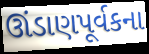
ઊંડાણપૂર્વકના